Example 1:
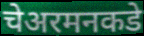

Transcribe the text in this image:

चेअरमनकडे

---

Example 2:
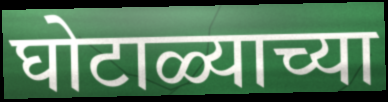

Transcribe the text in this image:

घोटाळ्याच्या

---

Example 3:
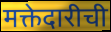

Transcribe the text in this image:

मक्तेदारीची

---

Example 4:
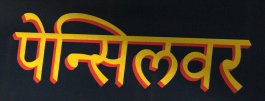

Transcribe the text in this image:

पेन्सिलवर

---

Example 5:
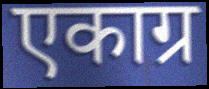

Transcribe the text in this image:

एकाग्र